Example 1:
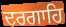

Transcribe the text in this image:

ਦਰਗਾਹਿ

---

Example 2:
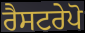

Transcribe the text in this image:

ਰੈਸਟਰੇਪੋ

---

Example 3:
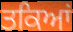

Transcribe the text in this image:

ਤਕਿਆਂ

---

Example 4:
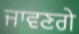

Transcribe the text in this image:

ਜਾਵਣਗੇ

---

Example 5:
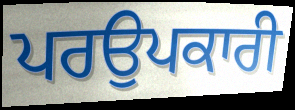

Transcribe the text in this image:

ਪਰਉਪਕਾਰੀ